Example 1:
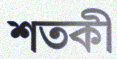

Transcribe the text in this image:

শতকী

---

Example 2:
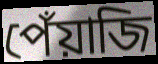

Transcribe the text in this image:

পেঁয়াজি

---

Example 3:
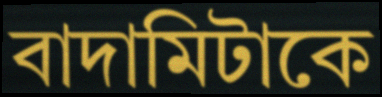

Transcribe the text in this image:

বাদামিটাকে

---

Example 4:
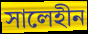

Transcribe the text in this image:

সালেহীন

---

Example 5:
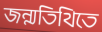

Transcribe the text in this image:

জন্মতিথিতে